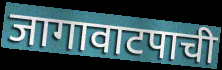
जागावाटपाची